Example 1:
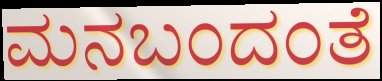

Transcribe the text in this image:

ಮನಬಂದಂತೆ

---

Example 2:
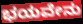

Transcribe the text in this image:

ಭಯವೇನು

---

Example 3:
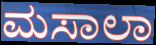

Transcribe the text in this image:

ಮಸಾಲಾ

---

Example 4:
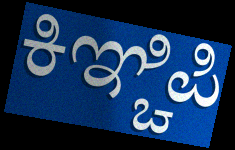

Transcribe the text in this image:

ಕಿಞ್ಚಿಪಿ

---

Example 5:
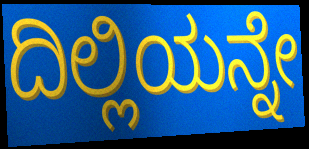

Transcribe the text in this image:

ದಿಲ್ಲಿಯನ್ನೇ